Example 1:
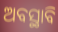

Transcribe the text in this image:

ଅବସ୍ଥାବି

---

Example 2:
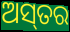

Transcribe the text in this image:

ଅସ୍‌ତର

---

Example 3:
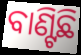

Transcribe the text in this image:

ବାଣ୍ଟିଛି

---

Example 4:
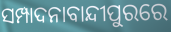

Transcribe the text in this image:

ସମ୍ପାଦନାବାନ୍ଦୀପୁରରେ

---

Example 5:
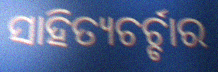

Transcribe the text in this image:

ସାହିତ୍ୟଚର୍ଚ୍ଚାର